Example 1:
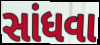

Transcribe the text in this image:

સાંધવા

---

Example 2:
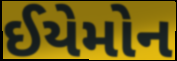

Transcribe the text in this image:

ઈયેમોન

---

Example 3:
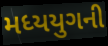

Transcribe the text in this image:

મધ્યયુગની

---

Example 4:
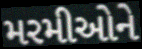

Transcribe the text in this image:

મરમીઓને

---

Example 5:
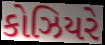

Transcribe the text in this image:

કોઝિયરે